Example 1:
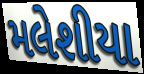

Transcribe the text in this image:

મલેશીયા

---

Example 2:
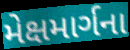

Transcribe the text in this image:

મેક્ષમાર્ગના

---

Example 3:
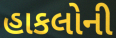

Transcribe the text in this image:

હાકલોની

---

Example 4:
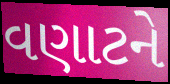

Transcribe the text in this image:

વણાટને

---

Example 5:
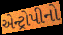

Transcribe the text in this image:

એન્ટ્રોપીનો